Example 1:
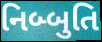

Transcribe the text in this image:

નિબ્બુતિ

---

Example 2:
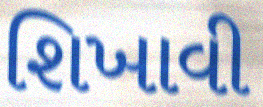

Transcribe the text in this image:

શિખાવી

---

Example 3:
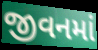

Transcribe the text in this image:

જીવનમાં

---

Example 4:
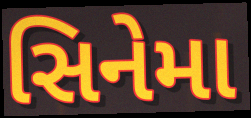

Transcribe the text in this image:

સિનેમા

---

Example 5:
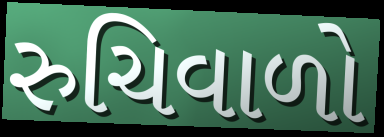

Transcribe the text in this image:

રુચિવાળો